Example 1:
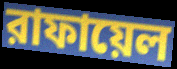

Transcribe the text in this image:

রাফায়েল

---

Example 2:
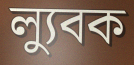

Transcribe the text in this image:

ল্যুবক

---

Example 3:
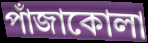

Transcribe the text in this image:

পাঁজাকোলা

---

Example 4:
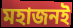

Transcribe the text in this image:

মহাজনই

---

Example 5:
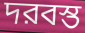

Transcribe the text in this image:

দরবস্ত